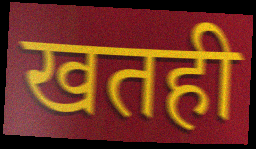
खतही